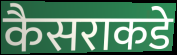
कैसराकडे